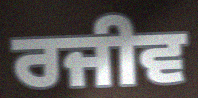
ਰਜੀਵ